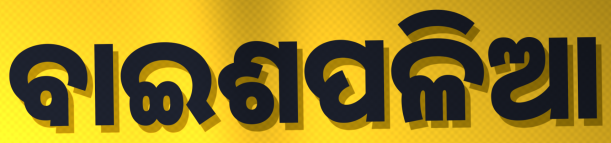
ବାଇଶପଳିଆ